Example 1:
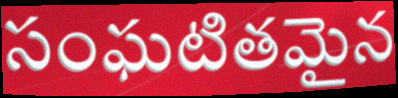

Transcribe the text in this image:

సంఘటితమైన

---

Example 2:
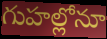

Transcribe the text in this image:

గుహల్లోనూ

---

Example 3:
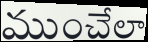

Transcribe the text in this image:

ముంచేలా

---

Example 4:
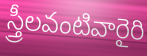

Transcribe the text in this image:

స్త్రీలవంటివారైరి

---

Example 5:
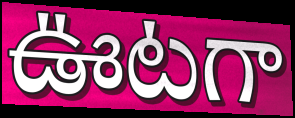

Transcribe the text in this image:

ఊటగా